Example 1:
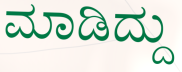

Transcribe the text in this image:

ಮಾಡಿದ್ದು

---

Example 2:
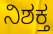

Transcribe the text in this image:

ನಿಶಕ್ತ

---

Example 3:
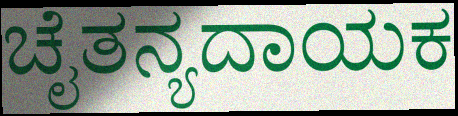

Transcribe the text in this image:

ಚೈತನ್ಯದಾಯಕ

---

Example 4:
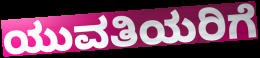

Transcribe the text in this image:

ಯುವತಿಯರಿಗೆ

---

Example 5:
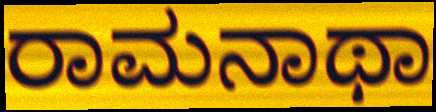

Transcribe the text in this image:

ರಾಮನಾಥಾ